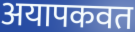
अयापकवत